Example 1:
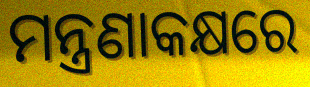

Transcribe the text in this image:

ମନ୍ତ୍ରଣାକକ୍ଷରେ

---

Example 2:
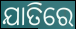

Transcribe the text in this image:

ଯାତିରେ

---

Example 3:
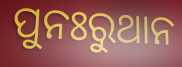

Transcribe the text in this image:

ପୁନଃରୁଥାନ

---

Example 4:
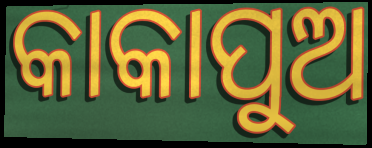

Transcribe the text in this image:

କାକାପୁଅ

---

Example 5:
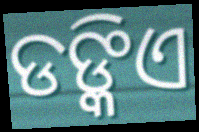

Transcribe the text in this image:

ଡଙ୍କିଏ